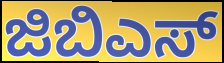
ಜಿಬಿಎಸ್